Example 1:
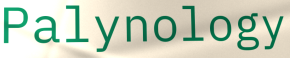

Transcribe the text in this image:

Palynology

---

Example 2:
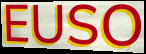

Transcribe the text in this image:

EUSO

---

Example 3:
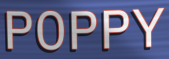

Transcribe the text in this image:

POPPY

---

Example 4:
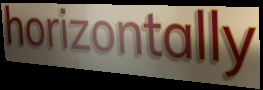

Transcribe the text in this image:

horizontally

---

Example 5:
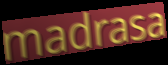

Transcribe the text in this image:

madrasa